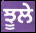
ਝੂਲੇ